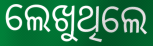
ଲେଖୁଥିଲେ